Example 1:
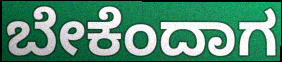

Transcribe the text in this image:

ಬೇಕೆಂದಾಗ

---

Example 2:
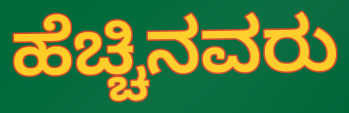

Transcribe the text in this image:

ಹೆಚ್ಚಿನವರು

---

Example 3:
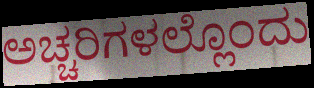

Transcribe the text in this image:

ಅಚ್ಚರಿಗಳಲ್ಲೊಂದು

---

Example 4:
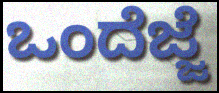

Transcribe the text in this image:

ಒಂದೆಜ್ಜೆ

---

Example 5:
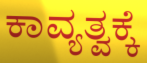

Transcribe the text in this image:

ಕಾವ್ಯತ್ವಕ್ಕೆ